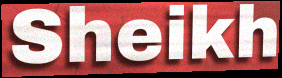
Sheikh